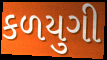
કળયુગી